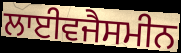
ਲਾਈਵਜੈਸਮੀਨ